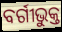
ବର୍ଗୀଭୁକ୍ତ